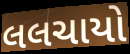
લલચાયો